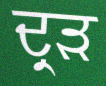
ਦ੍ਰੜ